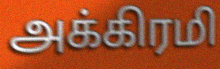
அக்கிரமி